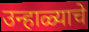
उन्हाळ्याचे